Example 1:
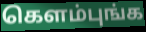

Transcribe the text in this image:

கெளம்புங்க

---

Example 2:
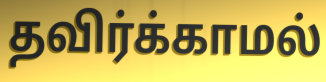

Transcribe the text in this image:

தவிர்க்காமல்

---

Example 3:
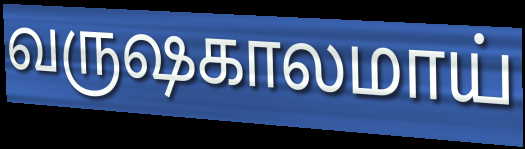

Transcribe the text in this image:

வருஷகாலமாய்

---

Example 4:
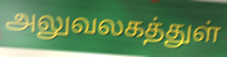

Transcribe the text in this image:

அலுவலகத்துள்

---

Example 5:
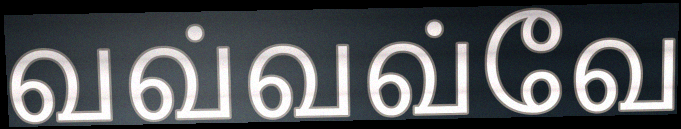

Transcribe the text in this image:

வவ்வவ்வே